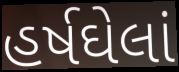
હર્ષઘેલાં